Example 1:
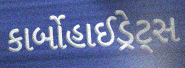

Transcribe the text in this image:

કાર્બોહાઈડ્રેટ્સ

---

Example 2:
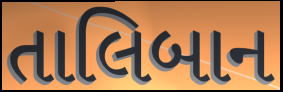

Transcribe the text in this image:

તાલિબાન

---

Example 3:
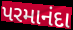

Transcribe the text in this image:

પરમાનંદા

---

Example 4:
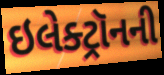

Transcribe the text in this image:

ઇલેક્ટ્રૉનની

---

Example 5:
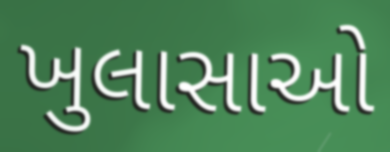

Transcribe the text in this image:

ખુલાસાઓ